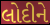
લોદીને